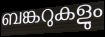
ബങ്കറുകളും